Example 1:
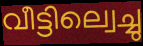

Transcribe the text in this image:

വീട്ടില്വെച്ചു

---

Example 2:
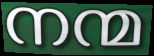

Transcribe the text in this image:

നന്മ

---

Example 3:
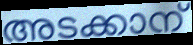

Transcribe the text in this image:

അടക്കാന്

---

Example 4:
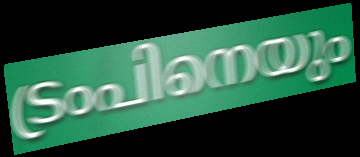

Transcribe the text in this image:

ട്രംപിനെയും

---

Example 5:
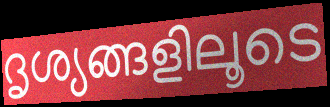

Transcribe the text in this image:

ദൃശ്യങ്ങളിലൂടെ